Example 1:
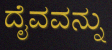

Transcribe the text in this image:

ದೈವವನ್ನು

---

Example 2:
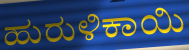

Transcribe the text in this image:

ಹುರುಳಿಕಾಯಿ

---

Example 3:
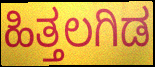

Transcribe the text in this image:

ಹಿತ್ತಲಗಿಡ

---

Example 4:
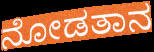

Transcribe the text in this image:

ನೋಡತಾನ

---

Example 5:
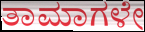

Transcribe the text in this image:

ತಾಮಾಗಳೇ